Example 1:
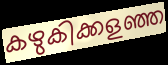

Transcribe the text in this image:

കഴുകിക്കളഞ്ഞ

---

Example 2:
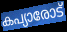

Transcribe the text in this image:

കപ്യാരോട്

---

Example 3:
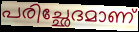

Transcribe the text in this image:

പരിച്ഛേദമാണ്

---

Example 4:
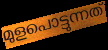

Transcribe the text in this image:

മുളപൊട്ടുന്നത്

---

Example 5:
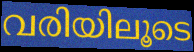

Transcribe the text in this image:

വരിയിലൂടെ